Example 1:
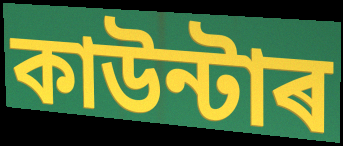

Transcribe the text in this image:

কাউন্টাৰ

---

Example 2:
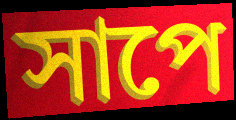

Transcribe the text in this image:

সাপে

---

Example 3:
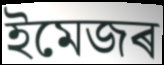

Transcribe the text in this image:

ইমেজৰ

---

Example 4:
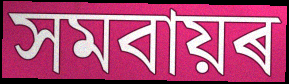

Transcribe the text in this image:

সমবায়ৰ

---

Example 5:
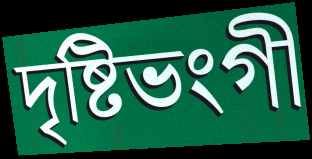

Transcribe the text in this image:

দৃষ্টিভংগী